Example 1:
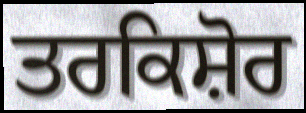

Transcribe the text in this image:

ਤਰਕਿਸ਼ੋਰ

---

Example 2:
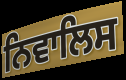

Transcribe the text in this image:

ਨਿਵਾਲਿਸ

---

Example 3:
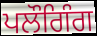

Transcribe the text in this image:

ਪਲੌਗਿੰਗ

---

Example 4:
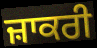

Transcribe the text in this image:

ਜ਼ਾਕਰੀ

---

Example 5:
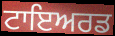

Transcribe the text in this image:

ਟਾਇਅਰਡ